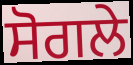
ਸੋਗਲੇ